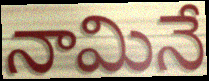
నామినే